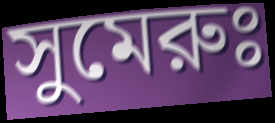
সুমেরুঃ